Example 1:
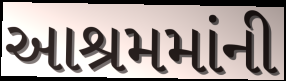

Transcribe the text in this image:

આશ્રમમાંની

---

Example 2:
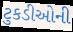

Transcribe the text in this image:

ટુકડીઓની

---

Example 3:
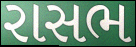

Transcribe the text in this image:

રાસભ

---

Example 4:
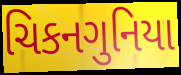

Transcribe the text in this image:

ચિકનગુનિયા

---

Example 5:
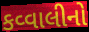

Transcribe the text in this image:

કવ્વાલીનો